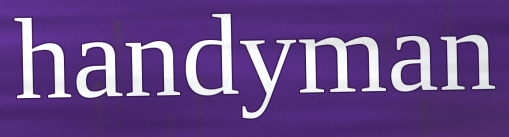
handyman